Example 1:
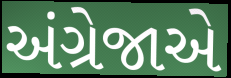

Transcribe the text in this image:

અંગ્રેજાએ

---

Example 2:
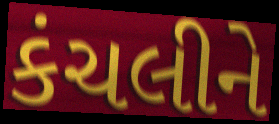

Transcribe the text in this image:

કંચલીને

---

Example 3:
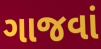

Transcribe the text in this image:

ગાજવાં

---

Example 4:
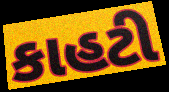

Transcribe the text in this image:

કાહટી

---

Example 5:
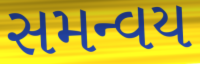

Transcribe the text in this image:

સમન્વય